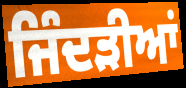
ਜਿੰਦੜੀਆਂ